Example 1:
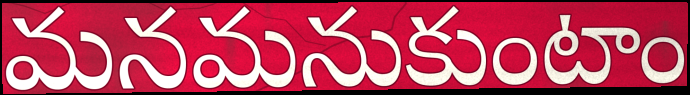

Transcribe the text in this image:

మనమనుకుంటాం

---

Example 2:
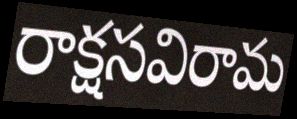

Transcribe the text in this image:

రాక్షసవిరామ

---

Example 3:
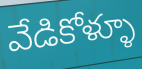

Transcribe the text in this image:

వేడికోళ్ళూ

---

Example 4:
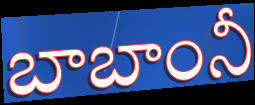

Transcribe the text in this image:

బాబాంనీ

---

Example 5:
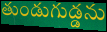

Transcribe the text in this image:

తుండుగుడ్డను